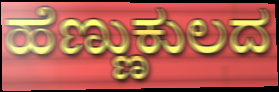
ಹೆಣ್ಣುಕುಲದ